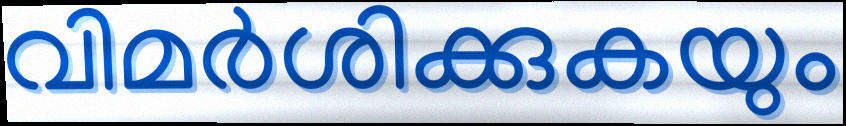
വിമർശിക്കുകയും